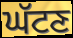
ਘੱਟਣ